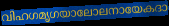
വിഹഗമൃഗയാലോലനായേകദാ